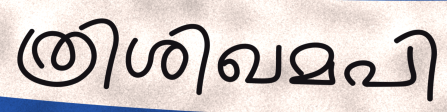
ത്രിശിഖമപി